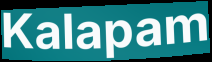
Kalapam